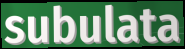
subulata